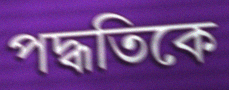
পদ্ধতিকে